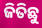
ଜିତିଛୁ